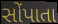
સોંપાતા